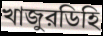
খাজুরডিহি